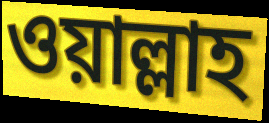
ওয়াল্লাহ